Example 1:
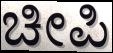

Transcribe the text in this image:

ಚೀಪಿ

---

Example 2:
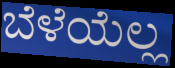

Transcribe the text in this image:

ಬೆಳೆಯೆಲ್ಲ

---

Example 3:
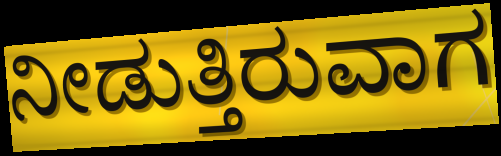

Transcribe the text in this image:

ನೀಡುತ್ತಿರುವಾಗ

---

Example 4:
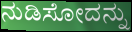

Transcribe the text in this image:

ನುಡಿಸೋದನ್ನು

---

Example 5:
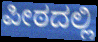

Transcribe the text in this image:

ಪೀಠದಲ್ಲಿ